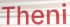
Theni